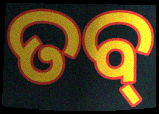
ତବ୍